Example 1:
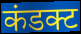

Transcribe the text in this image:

कंडक्ट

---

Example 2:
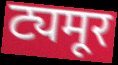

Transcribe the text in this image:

ट्यमूर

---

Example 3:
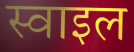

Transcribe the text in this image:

स्वाइल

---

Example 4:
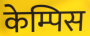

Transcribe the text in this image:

केम्पिस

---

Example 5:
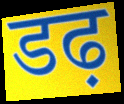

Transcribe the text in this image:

डढ़